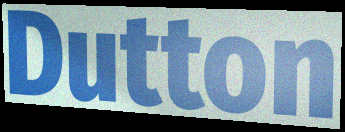
Dutton